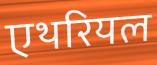
एथरियल